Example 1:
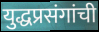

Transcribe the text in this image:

युद्धप्रसंगांची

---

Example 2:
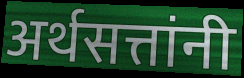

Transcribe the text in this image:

अर्थसत्तांनी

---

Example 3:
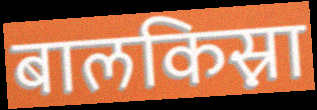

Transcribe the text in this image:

बालकिस्ना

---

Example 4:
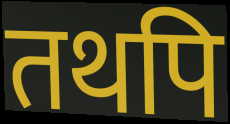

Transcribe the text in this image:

तथपि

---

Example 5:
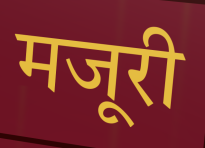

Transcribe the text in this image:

मजूरी